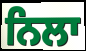
ਨਿਲਾ